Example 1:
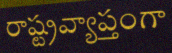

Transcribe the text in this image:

రాష్ట్రవ్యాప్తంగా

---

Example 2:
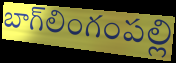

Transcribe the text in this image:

బాగ్‌లింగంపల్లి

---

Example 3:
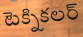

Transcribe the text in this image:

టెక్నికలర్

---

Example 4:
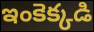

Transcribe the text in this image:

ఇంకెక్కడి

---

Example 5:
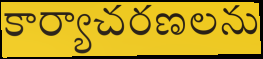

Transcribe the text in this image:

కార్యాచరణలను